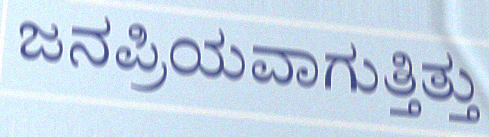
ಜನಪ್ರಿಯವಾಗುತ್ತಿತ್ತು